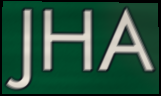
JHA